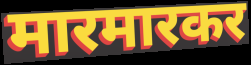
मारमारकर